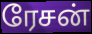
ரேசன்